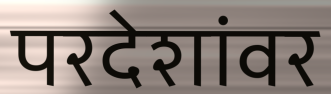
परदेशांवर